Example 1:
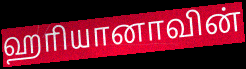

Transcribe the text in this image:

ஹரியானாவின்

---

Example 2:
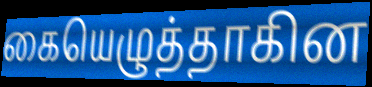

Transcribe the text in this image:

கையெழுத்தாகின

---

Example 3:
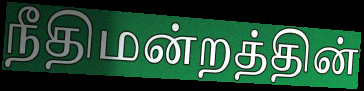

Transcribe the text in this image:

நீதிமன்றத்தின்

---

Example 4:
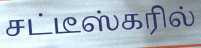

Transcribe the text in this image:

சட்டீஸ்கரில்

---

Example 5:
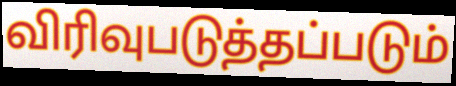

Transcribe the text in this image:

விரிவுபடுத்தப்படும்